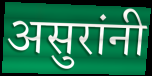
असुरांनी